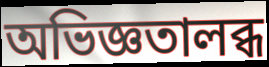
অভিজ্ঞতালব্ধ